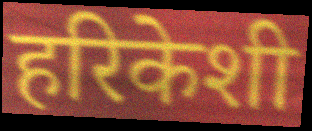
हरिकेशी